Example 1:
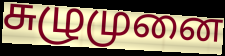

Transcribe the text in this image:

சுழுமுனை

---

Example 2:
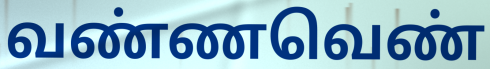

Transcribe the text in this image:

வண்ணவெண்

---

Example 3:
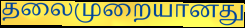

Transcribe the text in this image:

தலைமுறையானது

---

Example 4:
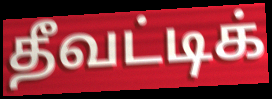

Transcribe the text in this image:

தீவட்டிக்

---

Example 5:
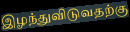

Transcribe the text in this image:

இழந்துவிடுவதற்கு